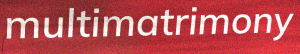
multimatrimony